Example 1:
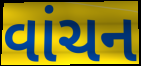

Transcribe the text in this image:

વાંચન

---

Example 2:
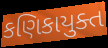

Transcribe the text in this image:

કણિકાયુક્ત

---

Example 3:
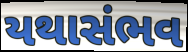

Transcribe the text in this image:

યથાસંભવ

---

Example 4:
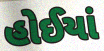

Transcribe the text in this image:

હોઈયાં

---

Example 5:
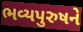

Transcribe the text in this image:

ભવ્યપુરુષને